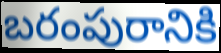
బరంపురానికి